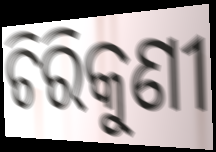
ଚିରିକୁଣୀ